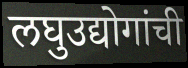
लघुउद्योगांची